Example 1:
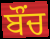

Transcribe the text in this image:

ਬੌਂਚ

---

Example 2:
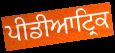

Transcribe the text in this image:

ਪੀਡੀਆਟ੍ਰਿਕ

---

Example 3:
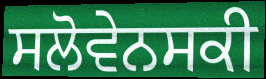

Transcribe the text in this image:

ਸਲੋਵੇਨਸਕੀ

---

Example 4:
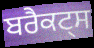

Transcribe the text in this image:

ਬਰੈਕਟ੍ਸ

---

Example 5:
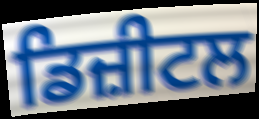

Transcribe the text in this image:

ਡਿਜ਼ੀਟਲ